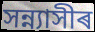
সন্ন্যাসীৰ